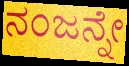
ನಂಜನ್ನೇ